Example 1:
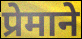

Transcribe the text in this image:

प्रेमाने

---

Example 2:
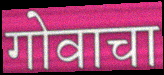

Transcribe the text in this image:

गोवाचा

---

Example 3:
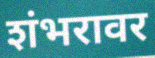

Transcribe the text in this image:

शंभरावर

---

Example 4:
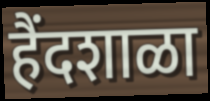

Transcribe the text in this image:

हैंदशाळा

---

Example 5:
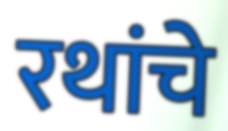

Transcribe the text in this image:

रथांचे